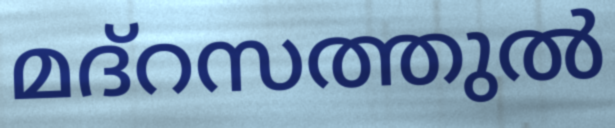
മദ്റസത്തുൽ